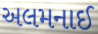
અલમનાઈ